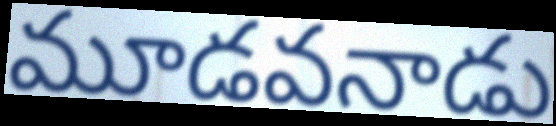
మూడవనాడు